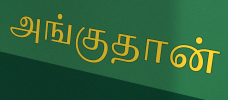
அங்குதான்